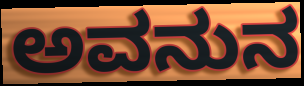
ಅವನುನ